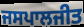
ਜਸਪਾਲਜੀਤ